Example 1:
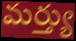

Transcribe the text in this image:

మర్త్యు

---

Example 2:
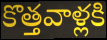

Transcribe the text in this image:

కొత్తవాళ్లకి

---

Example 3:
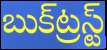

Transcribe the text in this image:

బుక్‌ట్రస్ట్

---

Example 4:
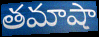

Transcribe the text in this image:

తమాషా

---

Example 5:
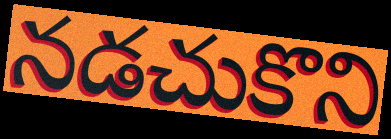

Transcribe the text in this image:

నడచుకొని